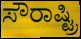
ಸೌರಾಷ್ಟ್ರಿ